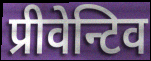
प्रीवेन्टिव